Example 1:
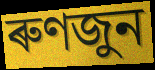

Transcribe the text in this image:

ৰুণজুন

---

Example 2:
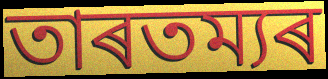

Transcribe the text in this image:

তাৰতম্যৰ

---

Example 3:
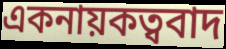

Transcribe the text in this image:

একনায়কত্ববাদ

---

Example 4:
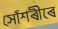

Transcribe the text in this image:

সোঁশৰীৰে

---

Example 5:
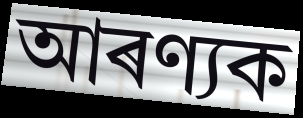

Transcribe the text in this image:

আৰণ্যক